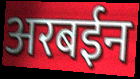
अरबईन